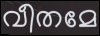
വീതമേ